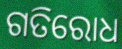
ଗତିରୋଧ